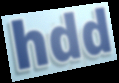
hdd